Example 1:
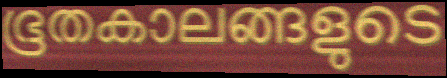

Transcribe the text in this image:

ഭൂതകാലങ്ങളുടെ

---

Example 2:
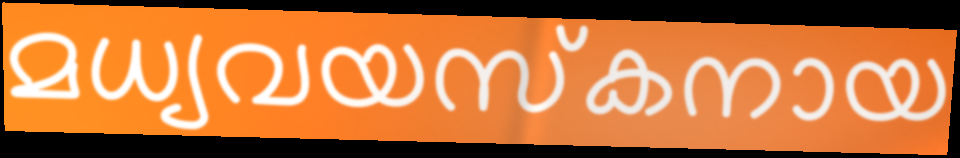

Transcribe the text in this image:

മധ്യവയസ്കനായ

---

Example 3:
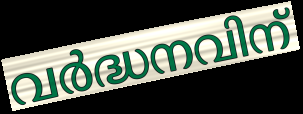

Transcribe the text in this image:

വർദ്ധനവിന്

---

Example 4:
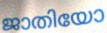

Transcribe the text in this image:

ജാതിയോ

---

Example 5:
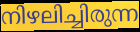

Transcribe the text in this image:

നിഴലിച്ചിരുന്ന